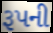
રૂપની